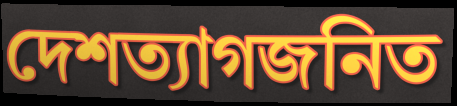
দেশত্যাগজনিত